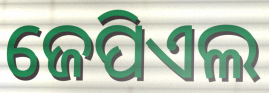
ଜେପିଏଲ